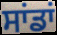
ਸਾਂਡਾਂ